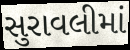
સુરાવલીમાં